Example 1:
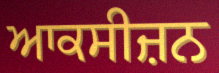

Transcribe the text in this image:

ਆਕਸੀਜ਼ਨ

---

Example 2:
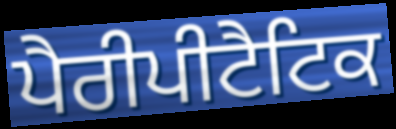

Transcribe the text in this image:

ਪੈਰੀਪੀਟੈਟਿਕ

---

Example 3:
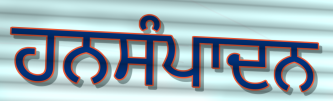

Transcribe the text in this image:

ਹਨਸੰਪਾਦਨ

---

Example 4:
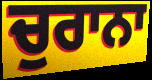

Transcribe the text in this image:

ਚੁਰਾਨਾ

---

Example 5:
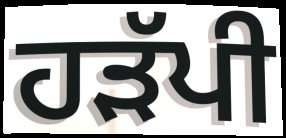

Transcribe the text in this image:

ਹੜੱਪੀ